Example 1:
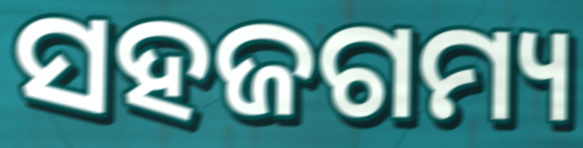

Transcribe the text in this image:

ସହଜଗମ୍ୟ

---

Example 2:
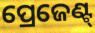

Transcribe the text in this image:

ପ୍ରେଜେଣ୍ଟ୍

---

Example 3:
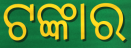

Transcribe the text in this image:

ଟଙ୍କାର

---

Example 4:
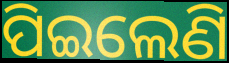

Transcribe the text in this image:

ପିଇଲେଣି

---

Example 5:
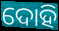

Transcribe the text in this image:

ଦୋହି